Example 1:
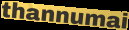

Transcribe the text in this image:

thannumai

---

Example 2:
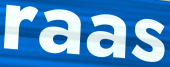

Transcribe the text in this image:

raas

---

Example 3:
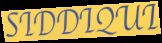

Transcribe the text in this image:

SIDDIQUI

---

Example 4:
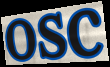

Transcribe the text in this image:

osc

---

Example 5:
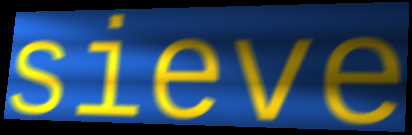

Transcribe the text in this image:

sieve